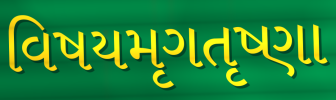
વિષયમૃગતૃષ્ણા